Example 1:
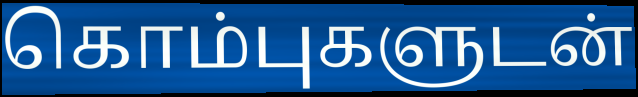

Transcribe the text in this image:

கொம்புகளுடன்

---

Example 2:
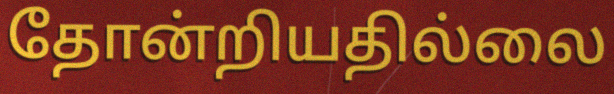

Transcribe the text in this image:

தோன்றியதில்லை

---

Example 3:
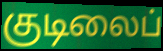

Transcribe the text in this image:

குடிலைப்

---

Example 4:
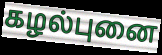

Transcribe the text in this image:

கழல்புனை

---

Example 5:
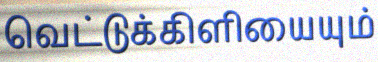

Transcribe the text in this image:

வெட்டுக்கிளியையும்